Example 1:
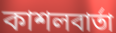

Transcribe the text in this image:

কাশলবার্তা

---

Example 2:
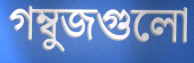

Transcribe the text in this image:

গম্বুজগুলো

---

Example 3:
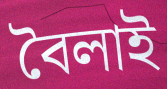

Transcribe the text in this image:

বৈলাই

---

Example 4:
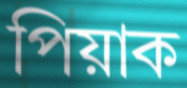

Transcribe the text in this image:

পিয়াক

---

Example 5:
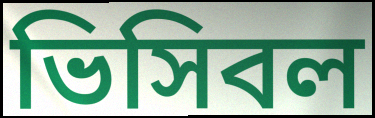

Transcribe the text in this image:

ভিসিবল